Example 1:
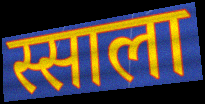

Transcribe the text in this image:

स्साला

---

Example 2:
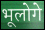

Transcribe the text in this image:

भूलोगे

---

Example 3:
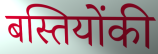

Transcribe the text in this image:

बस्तियोंकी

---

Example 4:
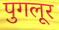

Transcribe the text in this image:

पुगलूर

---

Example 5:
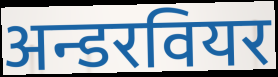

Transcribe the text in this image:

अन्डरवियर